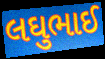
લઘુભાઈ